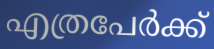
എത്രപേർക്ക്